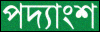
পদ্যাংশ